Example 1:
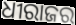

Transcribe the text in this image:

ଧୀରାଜର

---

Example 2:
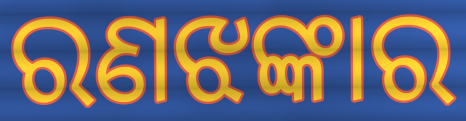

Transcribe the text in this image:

ରଣଝଙ୍କାର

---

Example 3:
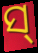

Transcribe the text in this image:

ସ୍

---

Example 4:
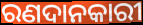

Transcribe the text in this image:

ରଣଦାନକାରୀ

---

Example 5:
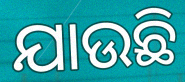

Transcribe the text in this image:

ଯାଉଛି